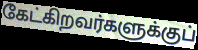
கேட்கிறவர்களுக்குப்